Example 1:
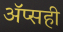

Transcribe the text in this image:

ॲप्सही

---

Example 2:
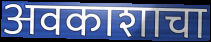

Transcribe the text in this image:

अवकाशाचा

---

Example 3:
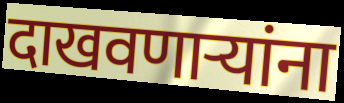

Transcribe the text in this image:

दाखवणाऱ्यांना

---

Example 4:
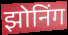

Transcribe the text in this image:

झोनिंग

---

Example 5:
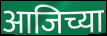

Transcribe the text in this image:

आजिच्या